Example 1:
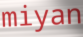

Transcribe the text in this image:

miyan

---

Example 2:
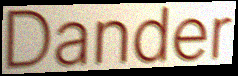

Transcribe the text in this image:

Dander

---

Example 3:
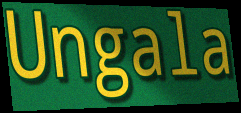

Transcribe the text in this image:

Ungala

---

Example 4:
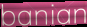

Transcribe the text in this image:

banian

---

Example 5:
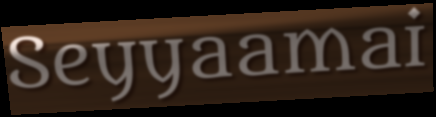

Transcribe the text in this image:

Seyyaamai